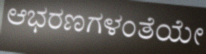
ಆಭರಣಗಳಂತೆಯೇ